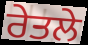
ਰੇਤਲੇ